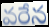
వరేన